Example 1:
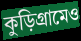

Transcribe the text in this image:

কুড়িগ্রামেও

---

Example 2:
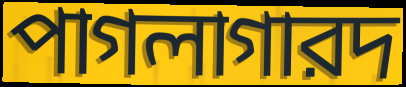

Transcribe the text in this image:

পাগলাগারদ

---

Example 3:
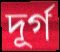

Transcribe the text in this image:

দূর্গ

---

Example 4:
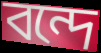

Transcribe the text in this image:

বন্দে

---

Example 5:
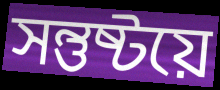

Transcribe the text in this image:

সন্তুষ্টয়ে